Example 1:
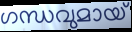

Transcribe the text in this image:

ഗന്ധവുമായ്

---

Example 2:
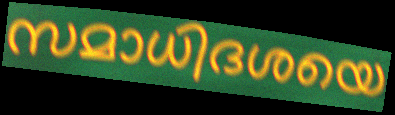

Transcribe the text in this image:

സമാധിദശയെ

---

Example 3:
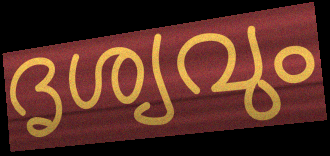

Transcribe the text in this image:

ദൃശ്യവും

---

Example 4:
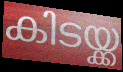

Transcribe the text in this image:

കിടയ്ക്ക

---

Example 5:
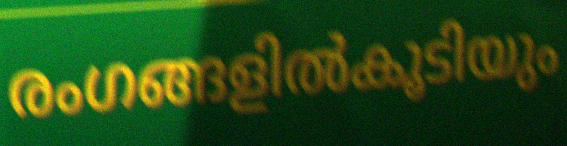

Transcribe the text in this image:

രംഗങ്ങളിൽകൂടിയും